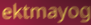
ektmayog